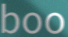
boo